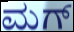
ಮಗ್